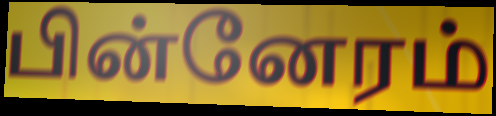
பின்னேரம்